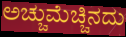
ಅಚ್ಚುಮೆಚ್ಚಿನದು